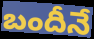
బందీనే